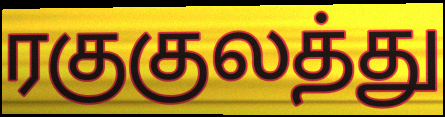
ரகுகுலத்து